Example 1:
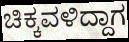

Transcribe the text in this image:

ಚಿಕ್ಕವಳಿದ್ದಾಗ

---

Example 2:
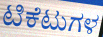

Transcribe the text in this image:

ಟಿಕೆಟುಗಳ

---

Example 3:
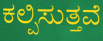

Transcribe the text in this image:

ಕಲ್ಪಿಸುತ್ತವೆ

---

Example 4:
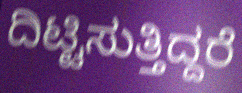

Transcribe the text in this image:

ದಿಟ್ಟಿಸುತ್ತಿದ್ದರೆ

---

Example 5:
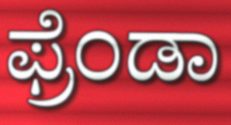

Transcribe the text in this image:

ಫ್ರೆಂಡಾ